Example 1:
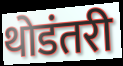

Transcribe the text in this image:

थोडंतरी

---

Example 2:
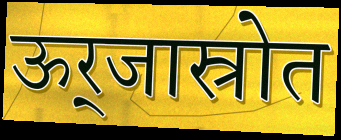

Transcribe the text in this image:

ऊर्जास्रोत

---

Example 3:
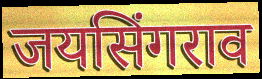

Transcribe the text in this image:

जयसिंगराव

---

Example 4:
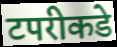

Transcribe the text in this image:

टपरीकडे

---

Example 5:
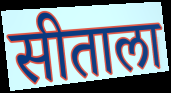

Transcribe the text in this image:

सीताला